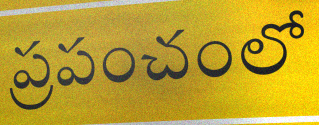
ప్రపంచంలో